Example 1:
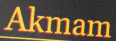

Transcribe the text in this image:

Akmam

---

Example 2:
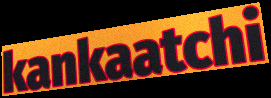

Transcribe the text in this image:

kankaatchi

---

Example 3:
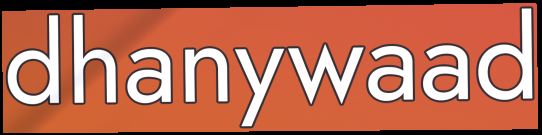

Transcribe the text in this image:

dhanywaad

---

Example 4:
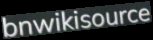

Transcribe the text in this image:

bnwikisource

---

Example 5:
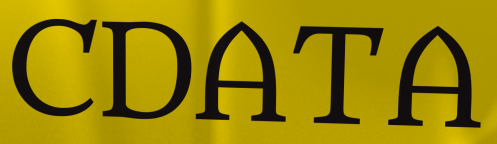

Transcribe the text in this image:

CDATA